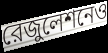
রেজুলেশনেও